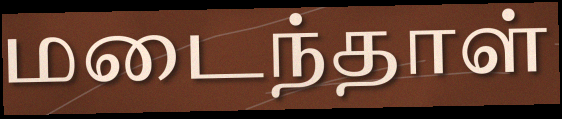
மடைந்தாள்